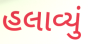
હલાવ્યું